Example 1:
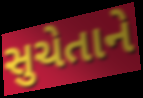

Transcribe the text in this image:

સુચેતાને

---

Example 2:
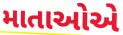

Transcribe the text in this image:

માતાઓએ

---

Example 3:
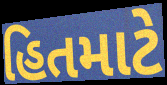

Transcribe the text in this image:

હિતમાટે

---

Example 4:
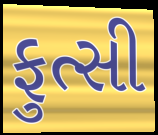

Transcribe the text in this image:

ફુત્સી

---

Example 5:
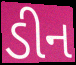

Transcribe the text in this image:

ડીન